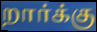
றார்க்கு